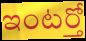
ఇంటర్తో